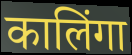
कालिंगा